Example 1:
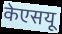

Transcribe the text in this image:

केएसयू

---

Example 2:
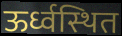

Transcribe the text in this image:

ऊर्ध्वस्थित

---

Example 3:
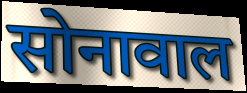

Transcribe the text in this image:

सोनावाल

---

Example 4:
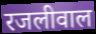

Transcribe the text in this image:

रजलीवाल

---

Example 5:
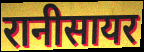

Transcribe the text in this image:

रानीसायर